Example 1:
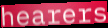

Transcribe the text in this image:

hearers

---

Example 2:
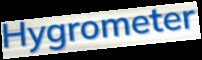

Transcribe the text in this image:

Hygrometer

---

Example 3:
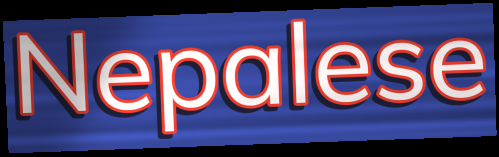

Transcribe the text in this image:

Nepalese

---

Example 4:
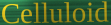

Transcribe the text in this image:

Celluloid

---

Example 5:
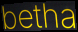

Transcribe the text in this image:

betha